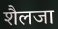
शैलजा